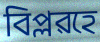
বিপ্লৱহে